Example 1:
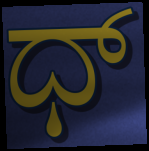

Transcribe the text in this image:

ಧ್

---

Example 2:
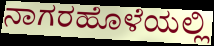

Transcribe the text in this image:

ನಾಗರಹೊಳೆಯಲ್ಲಿ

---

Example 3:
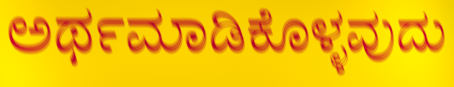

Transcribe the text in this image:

ಅರ್ಥಮಾಡಿಕೊಳ್ಳವುದು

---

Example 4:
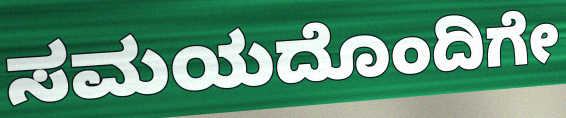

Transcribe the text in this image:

ಸಮಯದೊಂದಿಗೇ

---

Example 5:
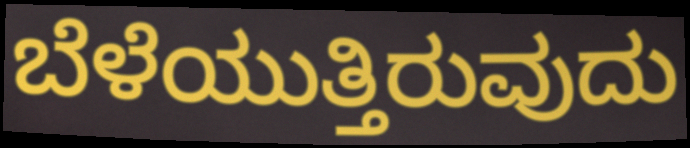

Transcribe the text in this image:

ಬೆಳೆಯುತ್ತಿರುವುದು